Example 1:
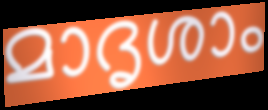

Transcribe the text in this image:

മാദൃശാം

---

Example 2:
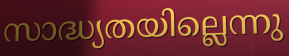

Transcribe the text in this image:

സാദ്ധ്യതയില്ലെന്നു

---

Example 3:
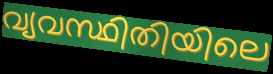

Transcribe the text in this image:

വ്യവസ്ഥിതിയിലെ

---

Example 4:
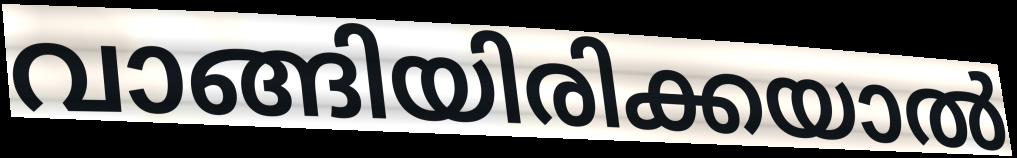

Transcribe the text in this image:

വാങ്ങിയിരിക്കയാൽ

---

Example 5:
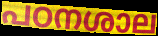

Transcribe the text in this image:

പഠനശാല